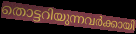
തൊട്ടറിയുന്നവർക്കായി